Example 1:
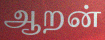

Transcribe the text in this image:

ஆறன்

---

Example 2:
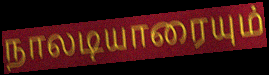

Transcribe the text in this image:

நாலடியாரையும்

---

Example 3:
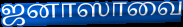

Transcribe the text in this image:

ஜனாஸாவை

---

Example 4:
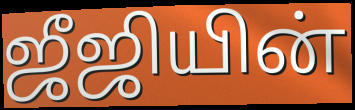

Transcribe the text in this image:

ஜீஜியின்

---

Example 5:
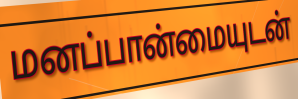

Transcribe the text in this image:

மனப்பான்மையுடன்